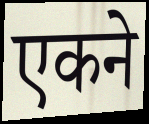
एकने